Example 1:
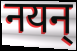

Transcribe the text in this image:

नयन्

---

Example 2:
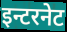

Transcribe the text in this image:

इन्टरनेट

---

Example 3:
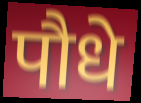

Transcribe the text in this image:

पौधे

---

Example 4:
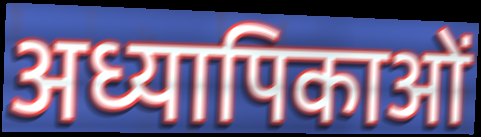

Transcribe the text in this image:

अध्यापिकाओं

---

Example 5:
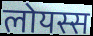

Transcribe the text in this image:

लोयस्स